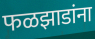
फळझाडांना